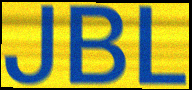
JBL